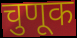
चुणूक